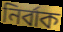
নির্বাক